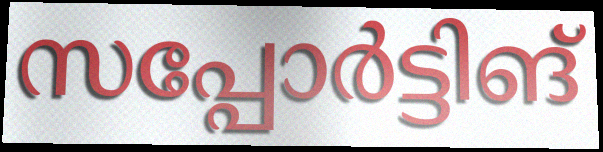
സപ്പോർട്ടിങ്